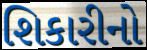
શિકારીનો